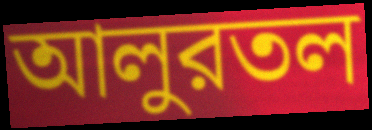
আলুরতল